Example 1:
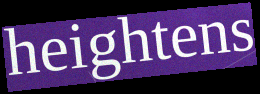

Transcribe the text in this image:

heightens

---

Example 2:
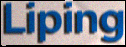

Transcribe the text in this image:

Liping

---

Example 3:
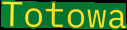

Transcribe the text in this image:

Totowa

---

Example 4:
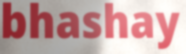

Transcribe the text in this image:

bhashay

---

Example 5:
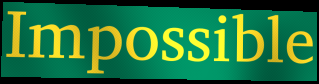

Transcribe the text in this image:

Impossible